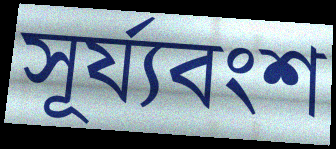
সূর্য্যবংশ